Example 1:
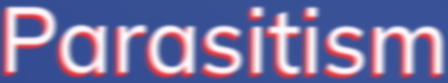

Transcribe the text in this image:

Parasitism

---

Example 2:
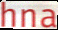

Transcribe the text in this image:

hna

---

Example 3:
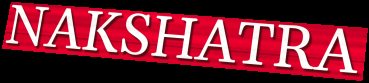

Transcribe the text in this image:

NAKSHATRA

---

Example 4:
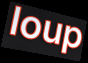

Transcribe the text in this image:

loup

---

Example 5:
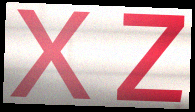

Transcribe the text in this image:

xz